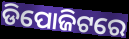
ଡିପୋଜିଟରେ